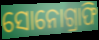
ସୋନୋଗ୍ରାଫି